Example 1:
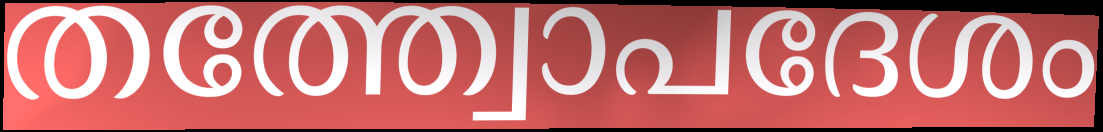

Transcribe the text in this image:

തത്ത്വോപദേശം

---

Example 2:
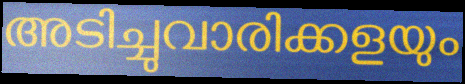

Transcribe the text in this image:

അടിച്ചുവാരിക്കളയും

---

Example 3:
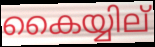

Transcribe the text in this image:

കൈയ്യില്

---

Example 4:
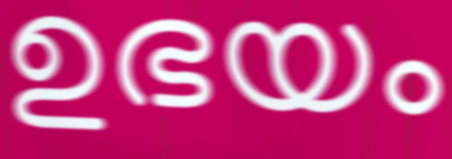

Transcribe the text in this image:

ഉഭയം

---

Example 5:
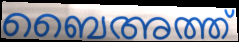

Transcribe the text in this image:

ബൈഅത്ത്